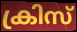
ക്രിസ്